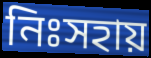
নিঃসহায়